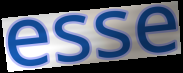
esse